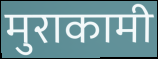
मुराकामी